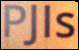
PJIs